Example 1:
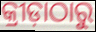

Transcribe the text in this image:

କ୍ରୀଡ଼ାଠାରୁ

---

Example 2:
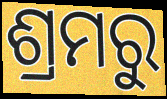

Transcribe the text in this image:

ଶ୍ରମରୁ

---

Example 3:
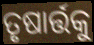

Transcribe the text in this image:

ତୃଷାର୍ତ୍ତକୁ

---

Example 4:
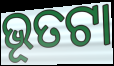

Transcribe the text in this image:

ଭୂତଟା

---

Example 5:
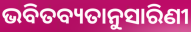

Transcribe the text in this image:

ଭବିତବ୍ୟତାନୁସାରିଣୀ